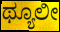
ಥ್ಯೂಲೀ